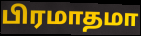
பிரமாதமா